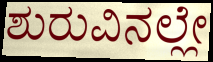
ಶುರುವಿನಲ್ಲೇ